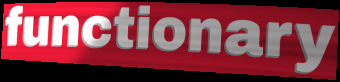
functionary